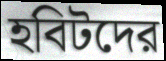
হবিটদের